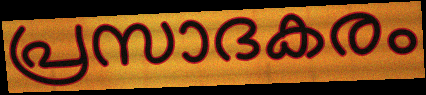
പ്രസാദകരം